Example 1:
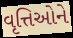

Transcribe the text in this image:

વૃત્તિઓને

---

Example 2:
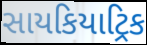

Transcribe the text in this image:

સાયકિયાટ્રિક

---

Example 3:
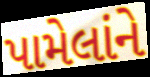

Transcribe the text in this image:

પામેલાંને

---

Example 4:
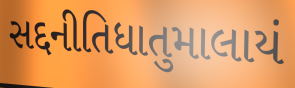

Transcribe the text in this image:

સદ્દનીતિધાતુમાલાયં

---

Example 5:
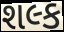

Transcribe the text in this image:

શલ્ક